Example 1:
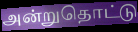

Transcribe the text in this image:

அன்றுதொட்டு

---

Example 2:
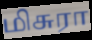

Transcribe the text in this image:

மிசுரா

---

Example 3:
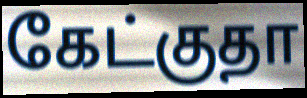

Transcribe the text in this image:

கேட்குதா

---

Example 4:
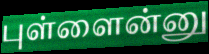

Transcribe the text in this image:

புள்ளைன்னு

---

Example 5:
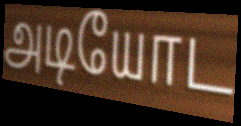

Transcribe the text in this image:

அடியோட